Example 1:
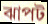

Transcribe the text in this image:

ঝাপট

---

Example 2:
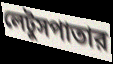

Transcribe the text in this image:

লেটুসপাতার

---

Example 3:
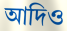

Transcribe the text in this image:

আদিও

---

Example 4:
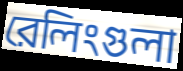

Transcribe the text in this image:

রেলিংগুলা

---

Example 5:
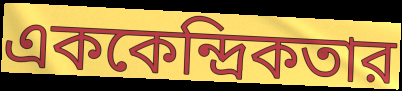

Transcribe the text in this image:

এককেন্দ্রিকতার